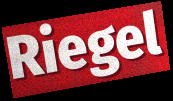
Riegel